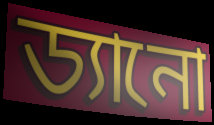
ড্যানো